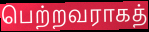
பெற்றவராகத்